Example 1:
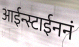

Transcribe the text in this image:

आईन्स्टाईननं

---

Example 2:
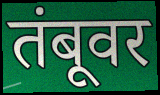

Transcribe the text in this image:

तंबूवर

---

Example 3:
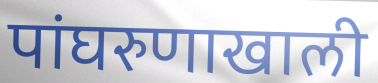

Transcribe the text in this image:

पांघरुणाखाली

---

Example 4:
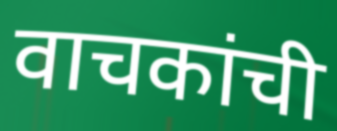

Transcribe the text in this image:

वाचकांची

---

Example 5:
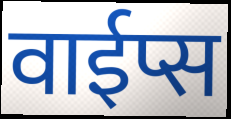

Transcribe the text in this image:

वाईप्स